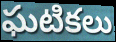
ఘటికలు